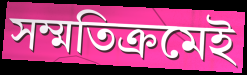
সম্মতিক্রমেই